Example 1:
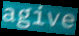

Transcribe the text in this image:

agive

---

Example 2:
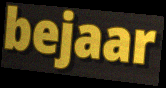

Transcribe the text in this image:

bejaar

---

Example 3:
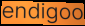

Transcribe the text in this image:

endigoo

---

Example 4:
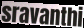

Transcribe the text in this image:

sravanthi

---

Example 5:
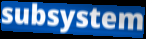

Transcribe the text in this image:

subsystem